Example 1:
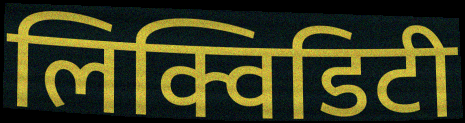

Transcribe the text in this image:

लिक्विडिटी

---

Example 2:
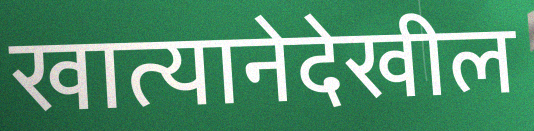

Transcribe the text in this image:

खात्यानेदेखील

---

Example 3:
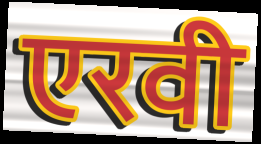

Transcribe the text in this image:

एरवी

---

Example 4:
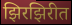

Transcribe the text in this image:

झिरझिरीत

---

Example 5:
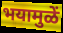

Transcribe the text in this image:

भयामुळें